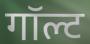
गॉल्ट